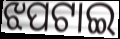
ଝପଟାଇ